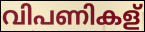
വിപണികള്